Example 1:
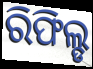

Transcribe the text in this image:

ରିଫିଲ୍ଡ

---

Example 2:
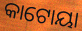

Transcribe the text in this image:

କାଟୋୟା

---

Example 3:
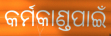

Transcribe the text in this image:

କର୍ମକାଣ୍ଡପାଇଁ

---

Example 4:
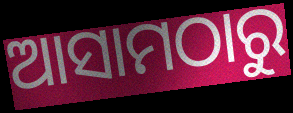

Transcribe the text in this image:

ଆସାମଠାରୁ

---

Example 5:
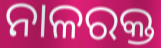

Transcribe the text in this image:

ନାଳରକ୍ତ